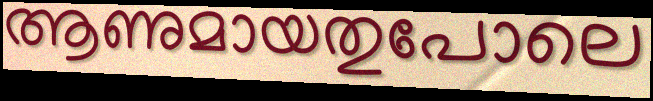
ആണുമായതുപോലെ